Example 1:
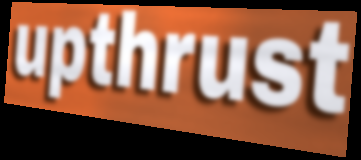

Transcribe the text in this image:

upthrust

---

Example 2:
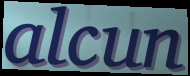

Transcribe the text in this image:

alcun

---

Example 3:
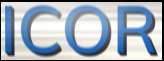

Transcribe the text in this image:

ICOR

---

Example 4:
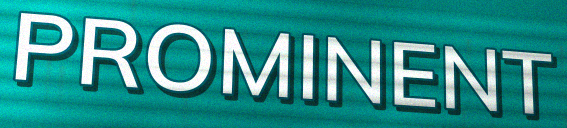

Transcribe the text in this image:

PROMINENT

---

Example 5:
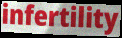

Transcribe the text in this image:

infertility